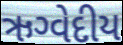
ઋગ્વેદીય